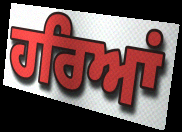
ਹਰਿਆਂ